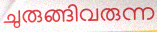
ചുരുങ്ങിവരുന്ന